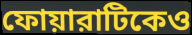
ফোয়ারাটিকেও